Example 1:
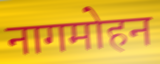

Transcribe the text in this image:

नागमोहन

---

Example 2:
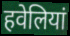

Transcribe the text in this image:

हवेलियां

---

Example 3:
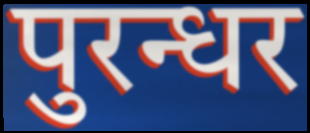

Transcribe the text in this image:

पुरन्धर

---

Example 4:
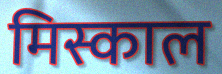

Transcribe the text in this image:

मिस्काल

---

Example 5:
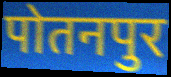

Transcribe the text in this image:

पोतनपुर